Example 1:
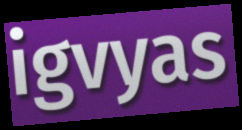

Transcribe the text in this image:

igvyas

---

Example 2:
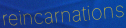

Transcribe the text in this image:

reincarnations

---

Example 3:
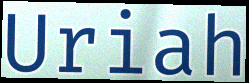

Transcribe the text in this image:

Uriah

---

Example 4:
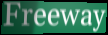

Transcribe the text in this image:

Freeway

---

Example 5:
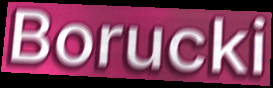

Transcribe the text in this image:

Borucki